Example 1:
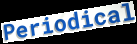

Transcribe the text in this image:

Periodical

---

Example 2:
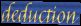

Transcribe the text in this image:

deduction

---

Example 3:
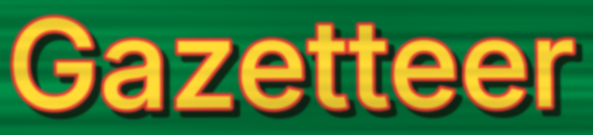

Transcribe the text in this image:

Gazetteer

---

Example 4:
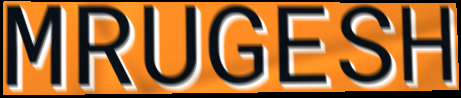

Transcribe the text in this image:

MRUGESH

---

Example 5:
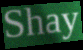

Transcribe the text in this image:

Shay